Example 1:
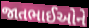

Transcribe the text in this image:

જાતભાઈઓને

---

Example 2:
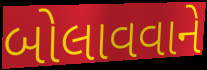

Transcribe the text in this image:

બોલાવવાને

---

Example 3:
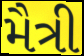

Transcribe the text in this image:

મૈત્રી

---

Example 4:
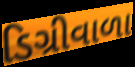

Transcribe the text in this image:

ડિગ્રીવાળા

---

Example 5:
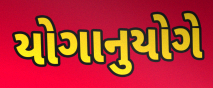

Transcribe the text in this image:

યોગાનુયોગે